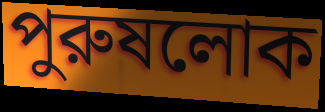
পুরুষলোক